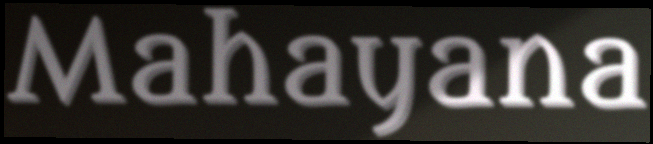
Mahayana